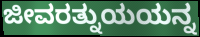
ಜೀವರತ್ನುಯಯನ್ನ